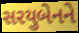
સરયુબેનને